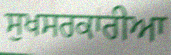
ਸੁਖਸਰਕਾਰੀਆ